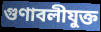
গুণাবলীযুক্ত